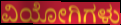
ವಿಯೋಗಿಗಳು